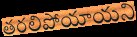
తరలిపోయాయని